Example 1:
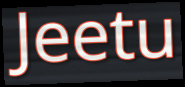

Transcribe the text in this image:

Jeetu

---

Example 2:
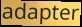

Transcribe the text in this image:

adapter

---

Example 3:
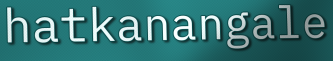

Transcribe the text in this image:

hatkanangale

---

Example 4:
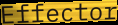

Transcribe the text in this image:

Effector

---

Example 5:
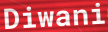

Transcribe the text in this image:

Diwani